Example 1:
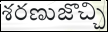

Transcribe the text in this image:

శరణుజొచ్చి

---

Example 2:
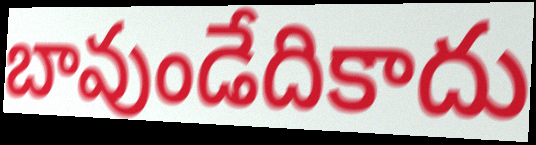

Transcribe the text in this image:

బావుండేదికాదు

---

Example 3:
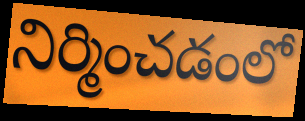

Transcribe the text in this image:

నిర్మించడంలో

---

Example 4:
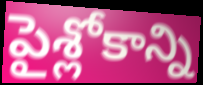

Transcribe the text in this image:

పైశ్లోకాన్ని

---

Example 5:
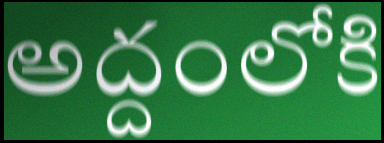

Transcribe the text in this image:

అద్దంలోకి